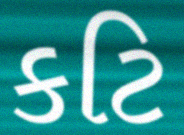
કટિ